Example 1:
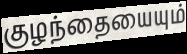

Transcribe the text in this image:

குழந்தையையும்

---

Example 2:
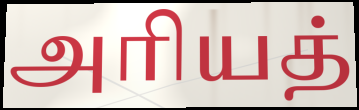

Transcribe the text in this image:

அரியத்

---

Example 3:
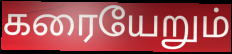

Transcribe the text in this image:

கரையேறும்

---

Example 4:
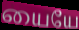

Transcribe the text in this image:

யையே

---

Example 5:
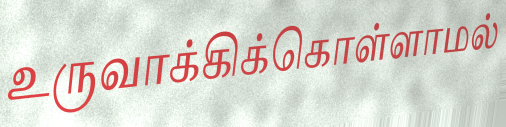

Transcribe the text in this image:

உருவாக்கிக்கொள்ளாமல்